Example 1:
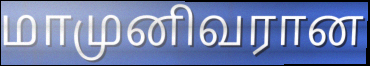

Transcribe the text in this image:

மாமுனிவரான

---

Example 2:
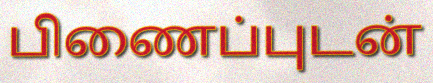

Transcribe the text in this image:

பிணைப்புடன்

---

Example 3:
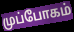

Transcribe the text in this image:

முப்போகம்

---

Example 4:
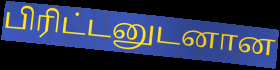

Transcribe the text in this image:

பிரிட்டனுடனான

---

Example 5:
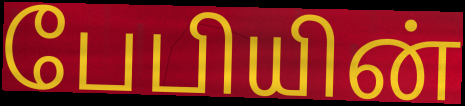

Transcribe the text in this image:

பேபியின்